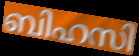
ബിഹസി